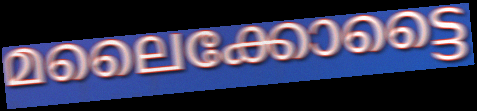
മലൈക്കോട്ടൈ